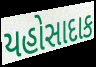
યહોસાદાક